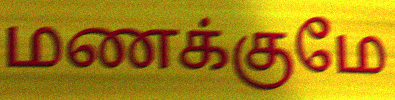
மணக்குமே